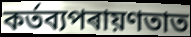
কৰ্তব্যপৰায়ণতাত